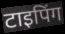
टाइपिंग